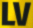
LV